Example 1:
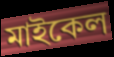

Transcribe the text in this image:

মাইকেল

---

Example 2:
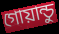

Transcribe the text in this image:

গোয়ান্ডু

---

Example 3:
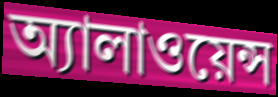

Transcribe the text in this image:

অ্যালাওয়েন্স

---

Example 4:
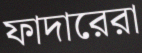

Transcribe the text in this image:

ফাদারেরা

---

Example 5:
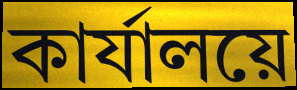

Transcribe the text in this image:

কার্যালয়ে